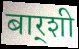
बार्शी